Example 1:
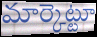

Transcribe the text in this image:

మార్కెట్టూ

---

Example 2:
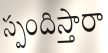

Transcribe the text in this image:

స్పందిస్తారా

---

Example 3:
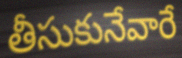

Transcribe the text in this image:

తీసుకునేవారే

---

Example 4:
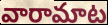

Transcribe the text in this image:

వారామాట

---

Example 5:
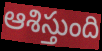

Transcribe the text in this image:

ఆశిస్తుంది